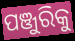
ପଞ୍ଜୁରିକୁ